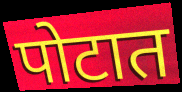
पोटात